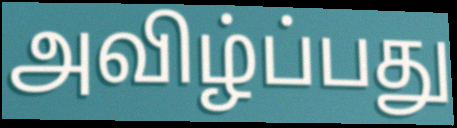
அவிழ்ப்பது